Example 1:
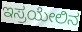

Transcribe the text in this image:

ಇಸ್ರಯೇಲಿನ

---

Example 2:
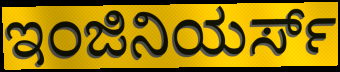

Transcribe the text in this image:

ಇಂಜಿನಿಯರ್ಸ್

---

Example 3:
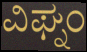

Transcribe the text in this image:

ವಿಘ್ನಂ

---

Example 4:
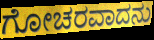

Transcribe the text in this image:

ಗೋಚರವಾದನು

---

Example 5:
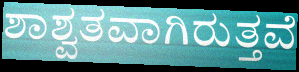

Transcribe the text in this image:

ಶಾಶ್ವತವಾಗಿರುತ್ತವೆ